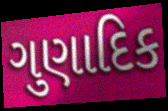
ગુણાદિક